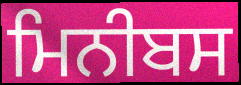
ਮਿਨੀਬਸ